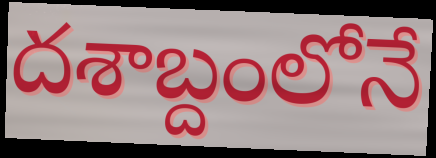
దశాబ్దంలోనే